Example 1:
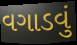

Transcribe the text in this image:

વગાડવું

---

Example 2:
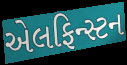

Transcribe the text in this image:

એલફિન્સ્ટન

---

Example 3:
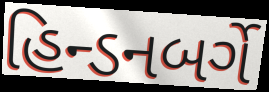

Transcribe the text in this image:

હિન્ડનબર્ગે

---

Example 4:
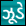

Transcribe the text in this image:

ઝૂડે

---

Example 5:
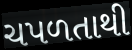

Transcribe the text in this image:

ચપળતાથી